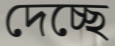
দেচ্ছে